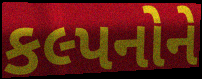
કલ્પનોને